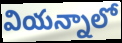
వియన్నాలో